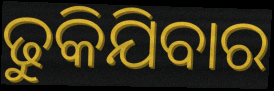
ଢୁକିଯିବାର